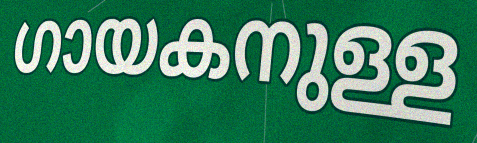
ഗായകനുള്ള